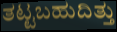
ತಟ್ಟಬಹುದಿತ್ತು